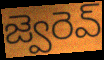
జ్వెరెవ్